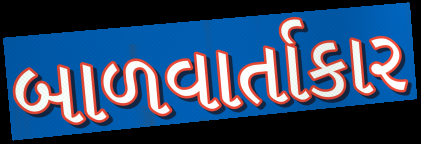
બાળવાર્તાકાર